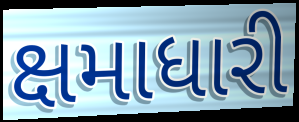
ક્ષમાધારી